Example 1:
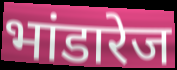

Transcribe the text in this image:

भांडारेज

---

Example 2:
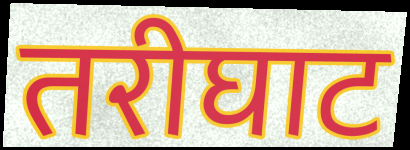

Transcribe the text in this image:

तरीघाट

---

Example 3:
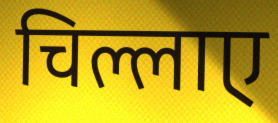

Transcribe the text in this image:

चिल्लाए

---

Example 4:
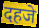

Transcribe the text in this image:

दहजे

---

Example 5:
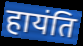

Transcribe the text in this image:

हायंति